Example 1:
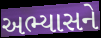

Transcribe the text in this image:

અભ્યાસને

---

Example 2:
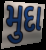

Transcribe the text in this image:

મુદા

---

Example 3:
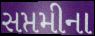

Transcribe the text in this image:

સપ્તમીના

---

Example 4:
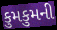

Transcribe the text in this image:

કુમકુમની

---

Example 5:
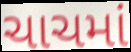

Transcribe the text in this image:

ચાચમાં